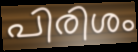
പിരിശം